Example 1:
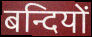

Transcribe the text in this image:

बन्दियों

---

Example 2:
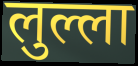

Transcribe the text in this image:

लुल्ला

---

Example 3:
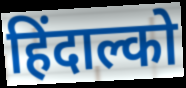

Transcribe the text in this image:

हिंदाल्को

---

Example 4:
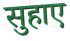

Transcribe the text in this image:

सुहाए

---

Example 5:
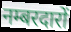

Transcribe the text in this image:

नम्बरदारों